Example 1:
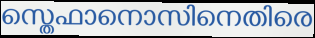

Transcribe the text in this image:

സ്തെഫാനൊസിനെതിരെ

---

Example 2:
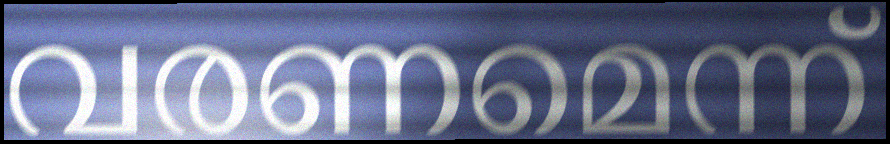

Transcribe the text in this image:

വരണമെന്ന്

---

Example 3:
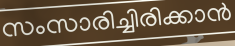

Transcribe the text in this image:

സംസാരിച്ചിരിക്കാൻ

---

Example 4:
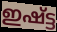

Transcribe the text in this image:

ഇഷ്ട്ട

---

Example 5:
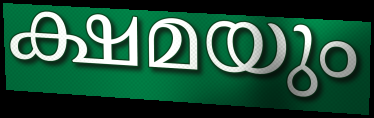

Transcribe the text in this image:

ക്ഷമയും